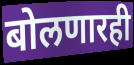
बोलणारही